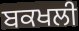
ਬਕਖਲੀ